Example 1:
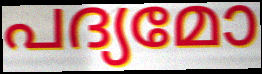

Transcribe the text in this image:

പദ്യമോ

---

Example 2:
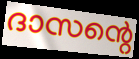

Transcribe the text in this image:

ദാസന്റെ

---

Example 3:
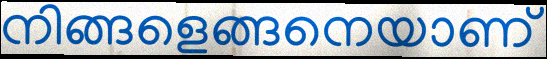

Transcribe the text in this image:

നിങ്ങളെങ്ങനെയാണ്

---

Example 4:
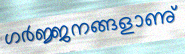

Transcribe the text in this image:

ഗർജ്ജനങ്ങളാണു്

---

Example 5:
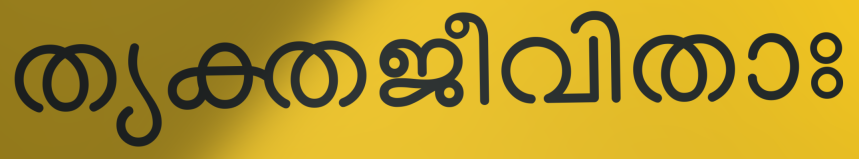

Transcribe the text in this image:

ത്യക്തജീവിതാഃ